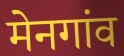
मेनगांव